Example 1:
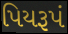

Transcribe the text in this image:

પિયરૂપં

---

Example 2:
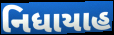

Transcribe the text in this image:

નિધાયાહ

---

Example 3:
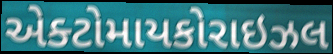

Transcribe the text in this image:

એક્ટોમાયકોરાઇઝલ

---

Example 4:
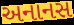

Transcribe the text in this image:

અનાનસ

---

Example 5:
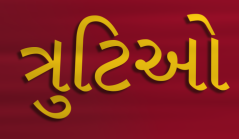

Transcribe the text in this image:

ત્રુટિઓ